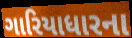
ગારિયાધારના